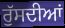
ਰੁੱਸਦੀਆਂ